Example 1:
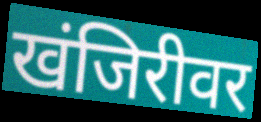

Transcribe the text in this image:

खंजिरीवर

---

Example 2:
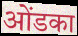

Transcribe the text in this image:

ओंडका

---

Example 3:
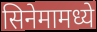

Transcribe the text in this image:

सिनेमामध्ये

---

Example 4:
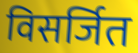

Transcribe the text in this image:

विसर्जित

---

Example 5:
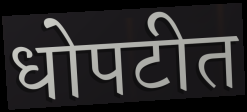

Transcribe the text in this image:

धोपटीत